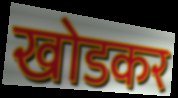
खोडकर